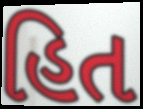
હિત